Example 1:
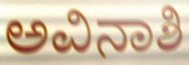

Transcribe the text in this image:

ಅವಿನಾಶಿ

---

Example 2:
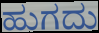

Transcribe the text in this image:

ಹುಗದು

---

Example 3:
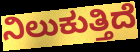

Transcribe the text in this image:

ನಿಲುಕುತ್ತಿದೆ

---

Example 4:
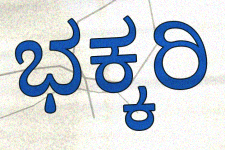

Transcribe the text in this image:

ಭಕ್ಕರಿ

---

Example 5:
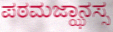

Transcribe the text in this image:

ಪಠಮಜ್ಝಾನಸ್ಸ